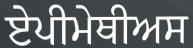
ਏਪੀਮੇਥੀਅਸ